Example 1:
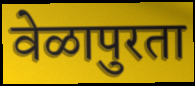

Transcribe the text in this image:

वेळापुरता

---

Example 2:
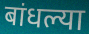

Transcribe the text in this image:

बांधल्या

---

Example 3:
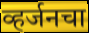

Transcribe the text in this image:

व्हर्जनचा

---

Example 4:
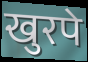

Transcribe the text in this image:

खुरपे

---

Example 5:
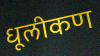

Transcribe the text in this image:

धूलीकण